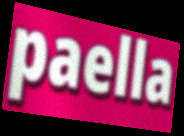
paella